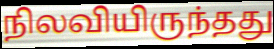
நிலவியிருந்தது